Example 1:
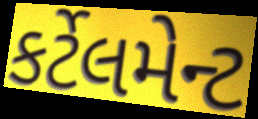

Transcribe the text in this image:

કર્ટેલમેન્ટ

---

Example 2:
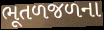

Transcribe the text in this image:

ભૂતળજળના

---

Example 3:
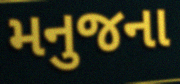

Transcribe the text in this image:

મનુજના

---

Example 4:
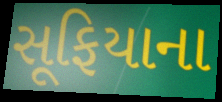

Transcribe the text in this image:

સૂફિયાના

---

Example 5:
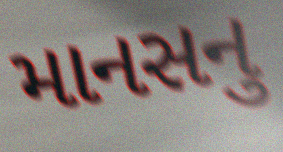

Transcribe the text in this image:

માનસનુ